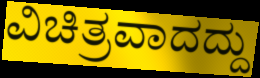
ವಿಚಿತ್ರವಾದದ್ದು